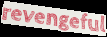
revengeful